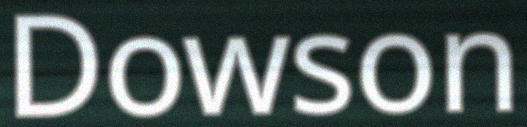
Dowson